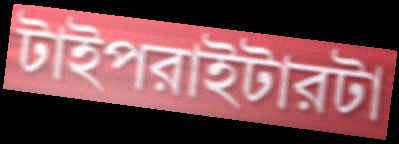
টাইপরাইটারটা